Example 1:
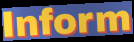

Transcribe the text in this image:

Inform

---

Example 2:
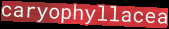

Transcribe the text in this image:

caryophyllacea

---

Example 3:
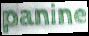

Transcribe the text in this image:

panine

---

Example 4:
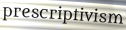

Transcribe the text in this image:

prescriptivism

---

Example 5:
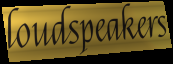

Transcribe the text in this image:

loudspeakers